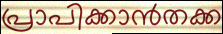
പ്രാപിക്കാൻതക്ക